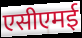
एसीएमई